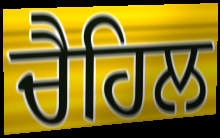
ਚੈਹਿਲ